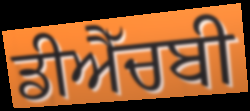
ਡੀਐੱਚਬੀ